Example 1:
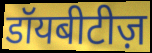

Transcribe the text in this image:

डॉयबीटीज़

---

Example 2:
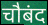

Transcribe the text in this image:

चौबंद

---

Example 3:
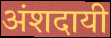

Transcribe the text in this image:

अंशदायी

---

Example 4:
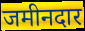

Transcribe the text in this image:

जमीनदार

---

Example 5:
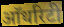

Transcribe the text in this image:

ऑथरिटी